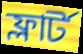
ফ্লার্ট